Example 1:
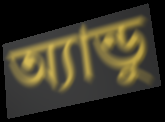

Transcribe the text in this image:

অ্যান্ডু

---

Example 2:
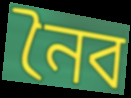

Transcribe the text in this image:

নৈব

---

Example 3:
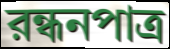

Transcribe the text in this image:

রন্ধনপাত্র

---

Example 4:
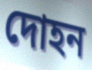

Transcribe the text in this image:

দোহন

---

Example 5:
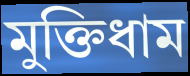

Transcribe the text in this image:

মুক্তিধাম